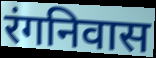
रंगनिवास